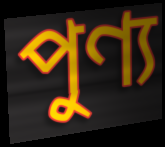
পুণ্য